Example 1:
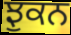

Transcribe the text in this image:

ਝੁਕਨ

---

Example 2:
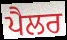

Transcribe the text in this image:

ਪੈਲਰ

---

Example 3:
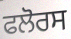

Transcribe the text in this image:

ਫਲੋਰਸ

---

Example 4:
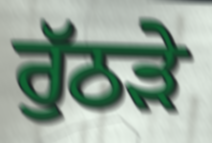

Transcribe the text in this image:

ਰੁੱਠੜੇ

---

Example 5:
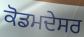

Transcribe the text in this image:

ਕੋਡਮਦੇਸਰ